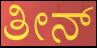
ತೀನ್